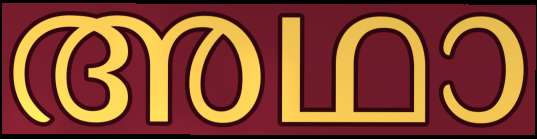
അഥാ